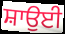
ਸ਼ਾਉਈ